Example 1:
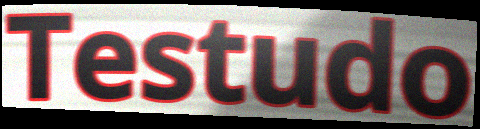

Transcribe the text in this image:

Testudo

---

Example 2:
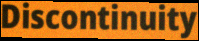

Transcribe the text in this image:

Discontinuity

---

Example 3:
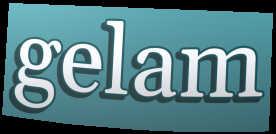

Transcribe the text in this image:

gelam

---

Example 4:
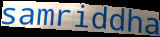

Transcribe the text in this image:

samriddha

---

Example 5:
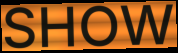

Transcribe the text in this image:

SHOW